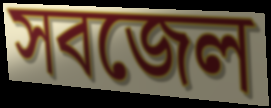
সবজেল